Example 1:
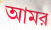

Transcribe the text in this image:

আমর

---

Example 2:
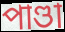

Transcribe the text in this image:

পাণ্ডা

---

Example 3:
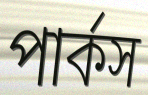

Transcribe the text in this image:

পার্কস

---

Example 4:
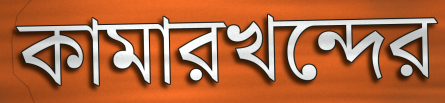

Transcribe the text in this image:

কামারখন্দের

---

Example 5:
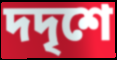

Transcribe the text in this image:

দদৃশে